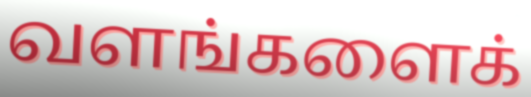
வளங்களைக்